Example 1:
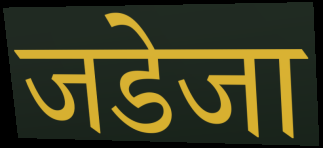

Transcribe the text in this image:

जडेजा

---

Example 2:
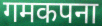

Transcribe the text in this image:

गमकपना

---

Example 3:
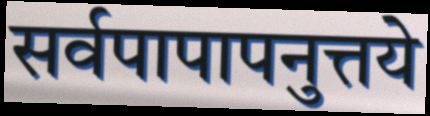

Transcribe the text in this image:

सर्वपापापनुत्तये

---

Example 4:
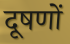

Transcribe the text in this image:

दूषणों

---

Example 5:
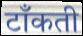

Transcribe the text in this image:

टाँकती